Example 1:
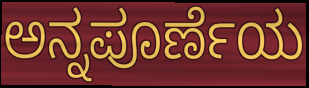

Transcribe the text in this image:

ಅನ್ನಪೂರ್ಣೆಯ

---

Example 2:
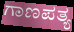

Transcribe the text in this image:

ಗಾಣಪತ್ಯ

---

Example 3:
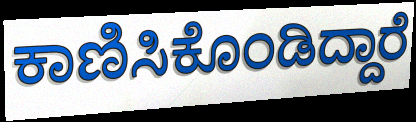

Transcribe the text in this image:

ಕಾಣಿಸಿಕೊಂಡಿದ್ದಾರೆ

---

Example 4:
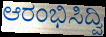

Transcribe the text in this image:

ಆರಂಭಿಸಿದ್ವಿ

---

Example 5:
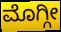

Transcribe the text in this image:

ಮೊಗ್ಗೀ